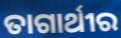
ତାଗାର୍ଥୀର